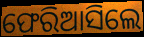
ଫେରିଆସିଲେ